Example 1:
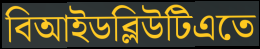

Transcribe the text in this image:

বিআইডব্লিউটিএতে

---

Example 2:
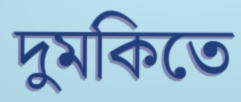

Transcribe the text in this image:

দুমকিতে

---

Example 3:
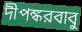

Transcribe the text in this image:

দীপঙ্করবাবু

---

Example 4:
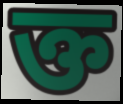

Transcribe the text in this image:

ক্ত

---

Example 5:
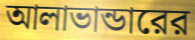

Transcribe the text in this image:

আলাভান্ডারের